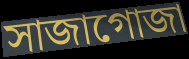
সাজাগোজা